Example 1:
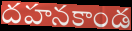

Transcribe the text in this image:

దహనకాండ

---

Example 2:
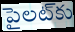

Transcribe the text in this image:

పైలట్‌కు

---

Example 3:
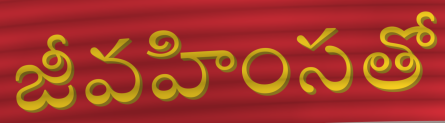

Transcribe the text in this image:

జీవహింసతో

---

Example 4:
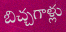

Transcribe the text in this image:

బిచ్చగాళ్లు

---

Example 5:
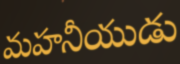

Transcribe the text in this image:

మహనీయుడు